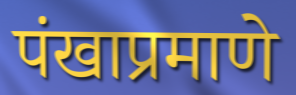
पंखाप्रमाणे